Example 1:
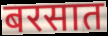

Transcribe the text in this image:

बरसात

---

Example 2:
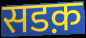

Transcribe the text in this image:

सडक़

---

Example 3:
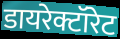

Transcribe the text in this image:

डायरेक्टॉरेट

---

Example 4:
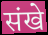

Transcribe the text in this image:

संखे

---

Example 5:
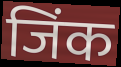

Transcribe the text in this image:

जिंक